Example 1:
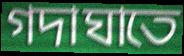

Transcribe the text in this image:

গদাঘাতে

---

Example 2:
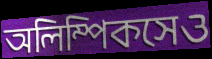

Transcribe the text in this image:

অলিম্পিকসেও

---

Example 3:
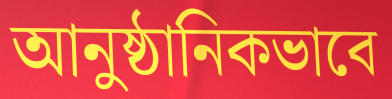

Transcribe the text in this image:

আনুষ্ঠানিকভাবে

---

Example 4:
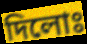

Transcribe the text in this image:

দিলোঃ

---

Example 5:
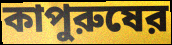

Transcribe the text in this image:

কাপুরুষের